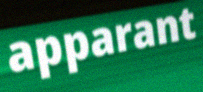
apparant